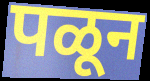
पळून